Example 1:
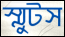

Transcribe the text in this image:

স্মুটস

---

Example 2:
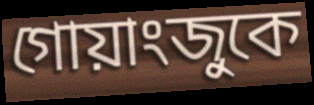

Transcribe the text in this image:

গোয়াংজুকে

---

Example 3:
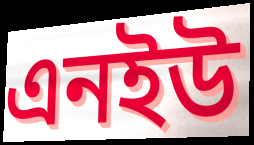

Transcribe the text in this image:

এনইউ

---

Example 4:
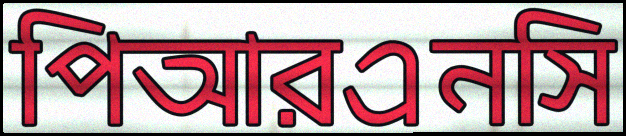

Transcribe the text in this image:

পিআরএনসি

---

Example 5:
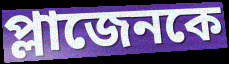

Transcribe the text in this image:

প্লাজেনকে